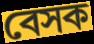
বেসক